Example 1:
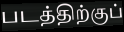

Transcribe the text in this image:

படத்திற்குப்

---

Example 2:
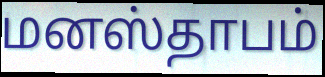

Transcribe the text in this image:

மனஸ்தாபம்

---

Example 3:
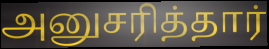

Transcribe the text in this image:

அனுசரித்தார்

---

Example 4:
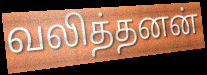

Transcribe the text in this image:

வலித்தனன்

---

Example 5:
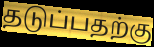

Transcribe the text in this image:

தடுப்பதற்கு